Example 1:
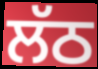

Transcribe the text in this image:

ਲੱਠ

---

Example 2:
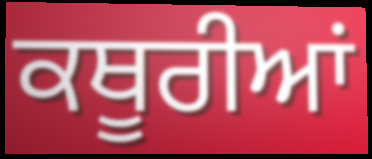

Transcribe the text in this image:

ਕਥੂਰੀਆਂ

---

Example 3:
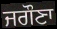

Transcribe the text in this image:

ਜਗੌਣਾ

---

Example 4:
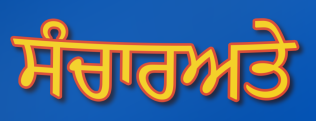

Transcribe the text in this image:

ਸੰਚਾਰਅਤੇ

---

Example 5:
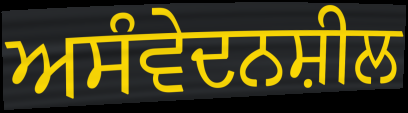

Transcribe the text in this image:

ਅਸੰਵੇਦਨਸ਼ੀਲ